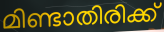
മിണ്ടാതിരിക്ക്